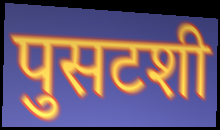
पुसटशी